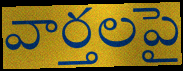
వార్తలపై